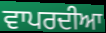
ਵਾਪਰਦੀਆ